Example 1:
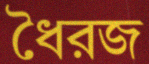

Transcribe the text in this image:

ধৈরজ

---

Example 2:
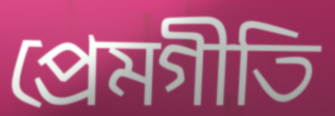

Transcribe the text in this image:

প্রেমগীতি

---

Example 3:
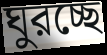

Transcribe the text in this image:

ঘুরচ্ছে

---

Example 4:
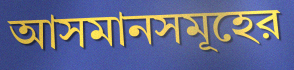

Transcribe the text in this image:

আসমানসমূহের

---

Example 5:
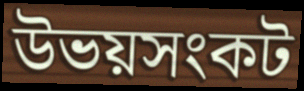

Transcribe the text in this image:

উভয়সংকট